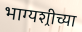
भाग्यश्रीच्या